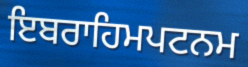
ਇਬਰਾਹਿਮਪਟਨਮ